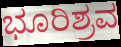
ಭೂರಿಶ್ರವ